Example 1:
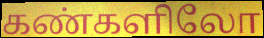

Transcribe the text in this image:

கண்களிலோ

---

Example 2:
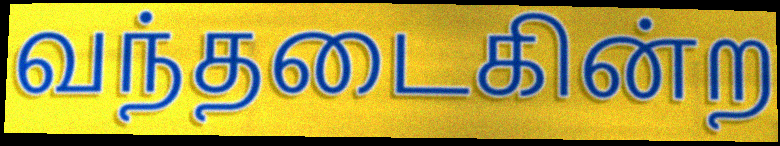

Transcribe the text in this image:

வந்தடைகின்ற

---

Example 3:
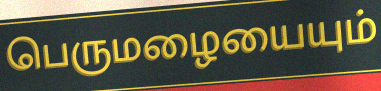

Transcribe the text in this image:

பெருமழையையும்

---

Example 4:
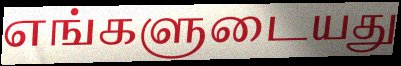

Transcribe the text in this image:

எங்களுடையது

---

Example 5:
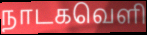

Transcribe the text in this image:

நாடகவெளி